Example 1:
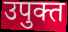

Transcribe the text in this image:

उपुक्त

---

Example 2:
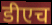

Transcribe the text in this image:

डीएच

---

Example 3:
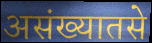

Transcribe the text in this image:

असंख्यातसे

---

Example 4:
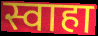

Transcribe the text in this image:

स्वाहा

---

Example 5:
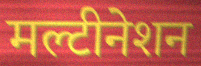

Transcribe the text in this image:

मल्टीनेशन